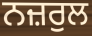
ਨਜ਼ਰੁਲ